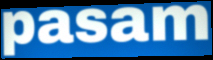
pasam